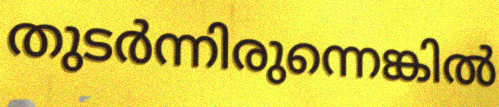
തുടർന്നിരുന്നെങ്കിൽ